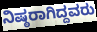
ನಿಷ್ಠರಾಗಿದ್ದವರು